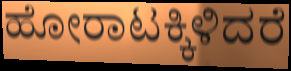
ಹೋರಾಟಕ್ಕಿಳಿದರೆ